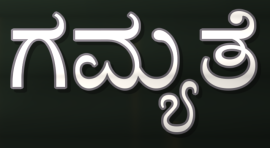
ಗಮ್ಯತೆ